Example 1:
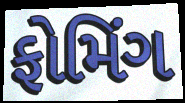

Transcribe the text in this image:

ફોમિંગ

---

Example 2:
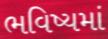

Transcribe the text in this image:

ભવિષ્યમાં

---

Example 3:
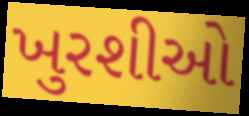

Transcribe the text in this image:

ખુરશીઓ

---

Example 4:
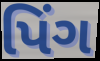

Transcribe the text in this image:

પિંગ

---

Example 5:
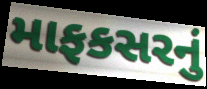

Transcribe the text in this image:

માફકસરનું